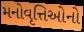
મનોવૃત્તિઓનો